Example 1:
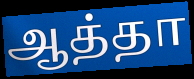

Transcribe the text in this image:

ஆத்தா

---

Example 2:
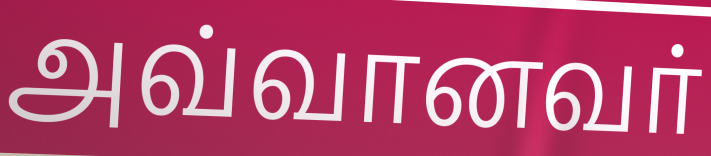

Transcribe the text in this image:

அவ்வானவர்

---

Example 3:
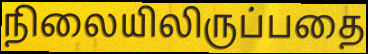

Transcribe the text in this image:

நிலையிலிருப்பதை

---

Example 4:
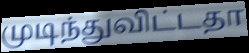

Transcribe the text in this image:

முடிந்துவிட்டதா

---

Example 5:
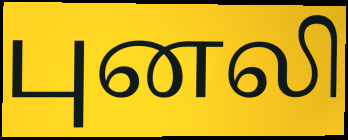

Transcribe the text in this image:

புனலி